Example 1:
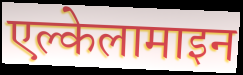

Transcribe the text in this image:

एल्केलामाइन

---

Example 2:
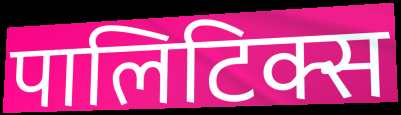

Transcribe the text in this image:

पालिटिक्स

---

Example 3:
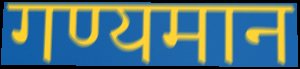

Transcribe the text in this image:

गण्यमान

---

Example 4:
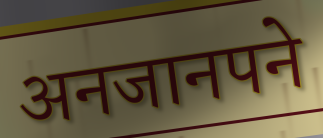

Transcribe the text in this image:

अनजानपने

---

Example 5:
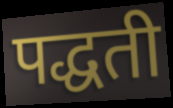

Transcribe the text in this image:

पद्धती